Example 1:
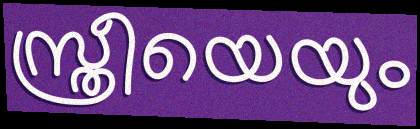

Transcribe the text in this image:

സ്ത്രീയെയും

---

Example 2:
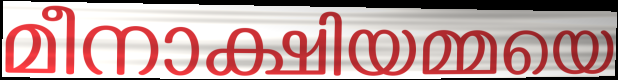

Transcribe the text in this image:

മീനാക്ഷിയമ്മയെ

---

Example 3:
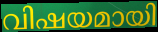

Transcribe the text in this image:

വിഷയമായി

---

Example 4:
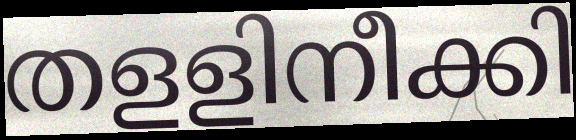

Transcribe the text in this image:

തളളിനീക്കി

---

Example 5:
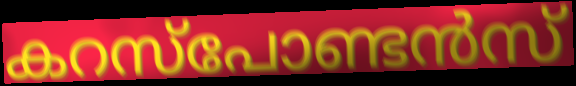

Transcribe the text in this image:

കറസ്പോണ്ടൻസ്